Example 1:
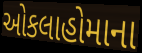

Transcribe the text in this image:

ઓકલાહોમાના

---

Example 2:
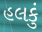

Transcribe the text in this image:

હલકું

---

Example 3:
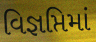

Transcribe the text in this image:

વિજ્ઞપ્તિમાં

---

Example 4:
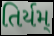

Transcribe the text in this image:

તિર્યમ્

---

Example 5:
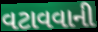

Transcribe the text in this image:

વટાવવાની